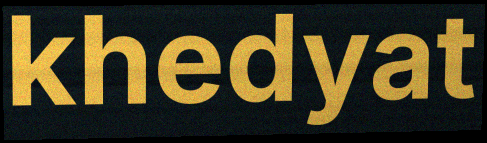
khedyat